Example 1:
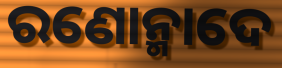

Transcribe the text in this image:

ରଣୋନ୍ମାଦେ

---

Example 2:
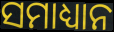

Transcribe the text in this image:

ସମାଧ୍ୟାନ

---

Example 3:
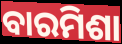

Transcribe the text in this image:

ବାରମିଶା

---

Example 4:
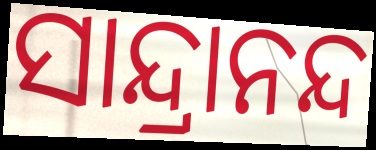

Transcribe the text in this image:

ସାନ୍ଦ୍ରାନନ୍ଦ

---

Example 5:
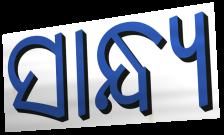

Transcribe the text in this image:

ସାନ୍ଧ୍ୟ